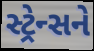
સ્ટ્રેન્સને